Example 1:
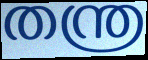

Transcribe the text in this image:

തന്ത്ര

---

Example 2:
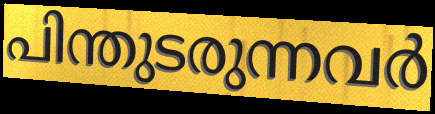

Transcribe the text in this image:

പിന്തുടരുന്നവർ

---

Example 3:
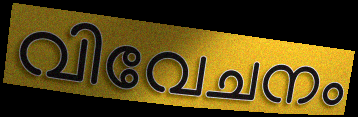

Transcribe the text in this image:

വിവേചനം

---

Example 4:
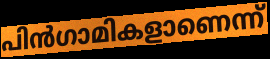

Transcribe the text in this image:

പിൻഗാമികളാണെന്ന്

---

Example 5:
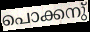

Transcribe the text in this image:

പൊക്കനു്